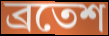
ব্রতেশ